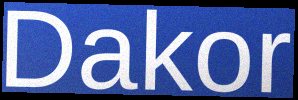
Dakor